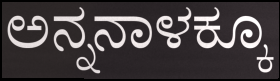
ಅನ್ನನಾಳಕ್ಕೂ